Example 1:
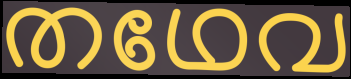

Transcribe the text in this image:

തഥേവ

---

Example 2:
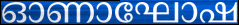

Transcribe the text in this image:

ഓണാഘോഷ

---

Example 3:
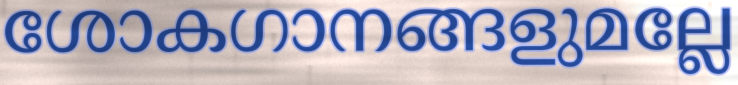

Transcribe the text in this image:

ശോകഗാനങ്ങളുമല്ലേ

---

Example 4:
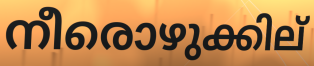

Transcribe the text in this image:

നീരൊഴുക്കില്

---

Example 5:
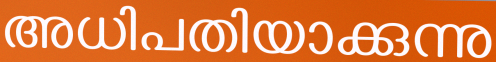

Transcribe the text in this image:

അധിപതിയാക്കുന്നു